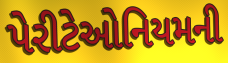
પેરીટેઓનિયમની